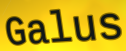
Galus